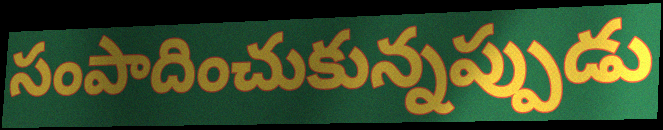
సంపాదించుకున్నప్పుడు